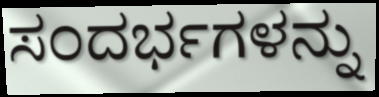
ಸಂದರ್ಭಗಳನ್ನು